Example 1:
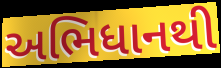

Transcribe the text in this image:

અભિધાનથી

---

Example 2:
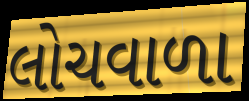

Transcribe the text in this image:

લોચવાળા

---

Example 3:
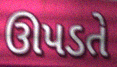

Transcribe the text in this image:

ઊપડતે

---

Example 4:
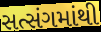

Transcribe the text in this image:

સત્સંગમાંથી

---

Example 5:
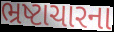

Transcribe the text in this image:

ભ્રષ્ટાચારના